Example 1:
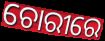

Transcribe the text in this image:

ଚୋରୀରେ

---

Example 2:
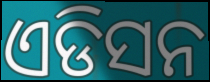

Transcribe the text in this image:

ଏଡିସନ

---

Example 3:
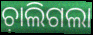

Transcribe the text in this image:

ଚ଼ାଲିଗଲା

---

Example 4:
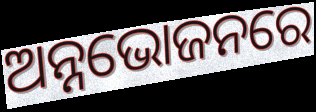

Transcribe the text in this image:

ଅନ୍ନଭୋଜନରେ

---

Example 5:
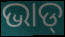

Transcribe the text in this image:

ଭାଡ୍